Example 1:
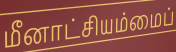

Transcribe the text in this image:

மீனாட்சியம்மைப்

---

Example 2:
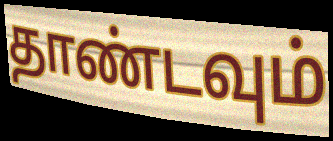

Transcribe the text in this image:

தாண்டவும்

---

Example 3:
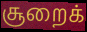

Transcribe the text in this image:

சூறைக்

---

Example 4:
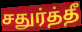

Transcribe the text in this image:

சதுர்த்தீ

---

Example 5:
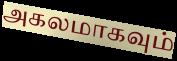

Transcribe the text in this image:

அகலமாகவும்